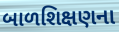
બાળશિક્ષણના